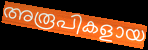
അരൂപികളായ